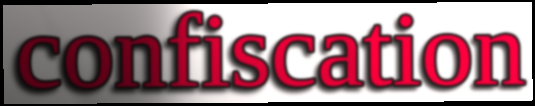
confiscation